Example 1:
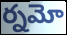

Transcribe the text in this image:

ర్నమో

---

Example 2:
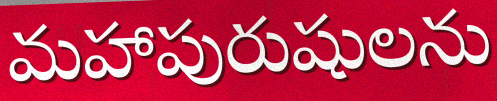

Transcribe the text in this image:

మహాపురుషులను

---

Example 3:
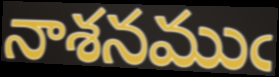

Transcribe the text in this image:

నాశనముఁ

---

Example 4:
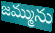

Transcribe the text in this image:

జమ్మును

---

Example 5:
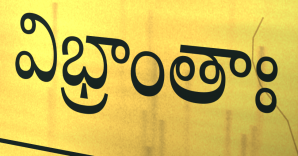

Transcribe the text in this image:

విభ్రాంతాః